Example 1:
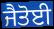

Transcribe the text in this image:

ਜੈਤੋਈ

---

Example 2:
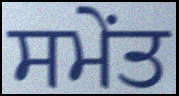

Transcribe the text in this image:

ਸਮੇਂਤ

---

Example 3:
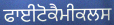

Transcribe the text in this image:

ਫਾਈਟੋਕੈਮੀਕਲਸ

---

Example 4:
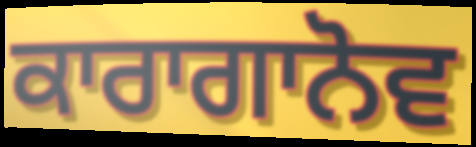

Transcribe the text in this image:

ਕਾਰਾਗਾਨੋਵ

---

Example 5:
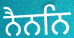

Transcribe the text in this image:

ਨੈਨਨਿ